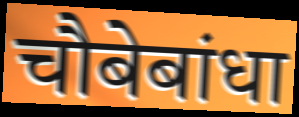
चौबेबांधा